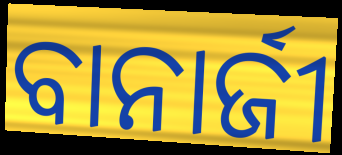
ବାନାର୍ଜୀ